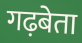
गढ़बेता